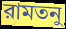
রামতনু